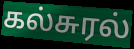
கல்சுரல்